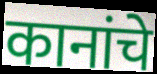
कानांचे